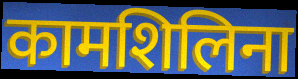
कामशिलिना